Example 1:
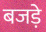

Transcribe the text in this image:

बजड़े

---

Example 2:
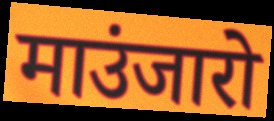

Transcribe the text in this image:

माउंजारो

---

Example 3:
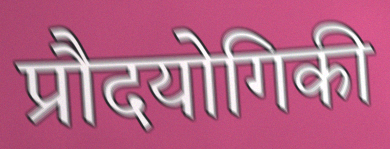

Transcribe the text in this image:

प्रौदयोगिकी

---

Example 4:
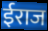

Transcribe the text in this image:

ईराज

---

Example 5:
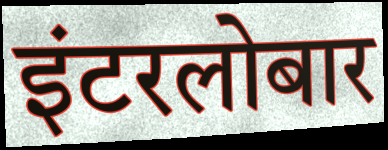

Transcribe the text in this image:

इंटरलोबार